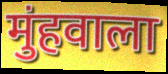
मुंहवाला